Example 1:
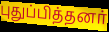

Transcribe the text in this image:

புதுப்பித்தனர்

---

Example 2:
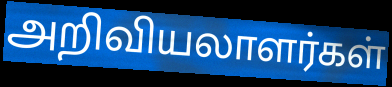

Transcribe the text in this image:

அறிவியலாளர்கள்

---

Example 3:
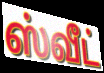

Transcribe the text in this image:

ஸ்வீட்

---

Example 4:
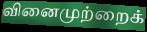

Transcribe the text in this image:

வினைமுற்றைக்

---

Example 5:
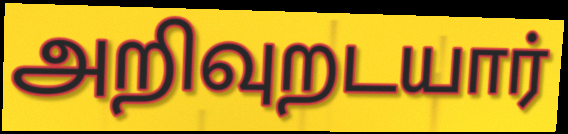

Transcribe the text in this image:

அறிவுறடயார்